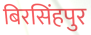
बिरसिंहपुर